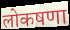
लोकषणा